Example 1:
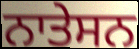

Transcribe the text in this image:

ਨਾਤੇਸਨ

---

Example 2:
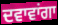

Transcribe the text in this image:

ਦਵਾਵਾਂਗਾ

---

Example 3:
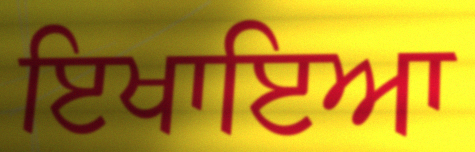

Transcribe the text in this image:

ਇਖਾਇਆ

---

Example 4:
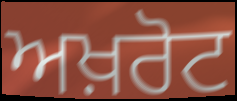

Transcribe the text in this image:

ਅਖ਼ਰੋਟ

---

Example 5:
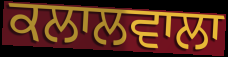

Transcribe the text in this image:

ਕਲਾਲਵਾਲਾ